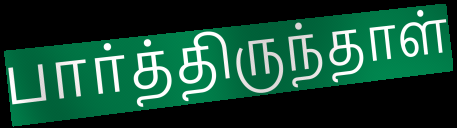
பார்த்திருந்தாள்